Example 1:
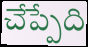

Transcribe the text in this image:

చేప్పేది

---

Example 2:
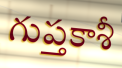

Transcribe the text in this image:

గుప్తకాశీ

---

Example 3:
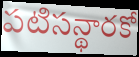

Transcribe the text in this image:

పటిసన్థారకో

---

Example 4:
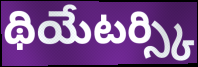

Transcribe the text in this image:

థియేటర్స్కి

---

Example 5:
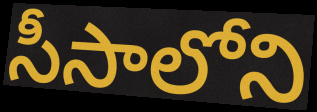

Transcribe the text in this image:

సీసాలోని